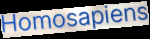
Homosapiens